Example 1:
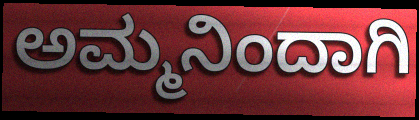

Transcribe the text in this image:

ಅಮ್ಮನಿಂದಾಗಿ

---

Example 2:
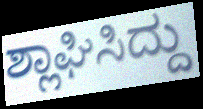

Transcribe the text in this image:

ಶ್ಲಾಘಿಸಿದ್ದು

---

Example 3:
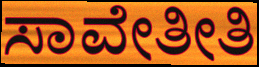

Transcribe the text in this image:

ಸಾವೇತೀತಿ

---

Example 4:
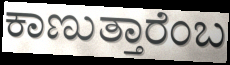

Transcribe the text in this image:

ಕಾಣುತ್ತಾರೆಂಬ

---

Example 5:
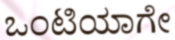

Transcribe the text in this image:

ಒಂಟಿಯಾಗೇ